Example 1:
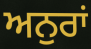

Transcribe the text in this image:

ਅਨੁਰਾਂ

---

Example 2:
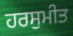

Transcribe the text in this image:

ਹਰਸੁਮੀਤ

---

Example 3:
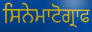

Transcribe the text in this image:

ਸਿਨੇਮਾਟੋਗ੍ਰਾਫ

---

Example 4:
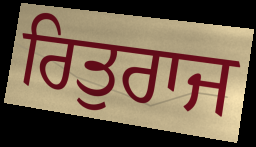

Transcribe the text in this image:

ਰਿਤੁਰਾਜ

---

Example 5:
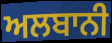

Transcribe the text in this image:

ਅਲਬਾਨੀ